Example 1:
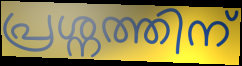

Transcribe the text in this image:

പ്രശ്നത്തിന്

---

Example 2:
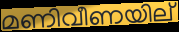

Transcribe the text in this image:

മണിവീണയില്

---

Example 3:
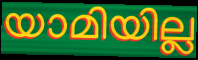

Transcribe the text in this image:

യാമിയില്ല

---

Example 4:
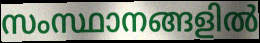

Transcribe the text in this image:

സംസ്ഥാനങ്ങളിൽ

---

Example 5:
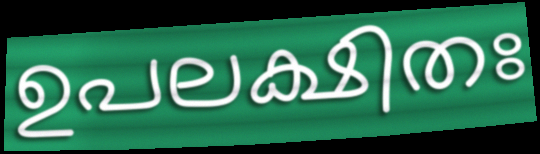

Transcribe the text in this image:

ഉപലക്ഷിതഃ